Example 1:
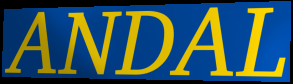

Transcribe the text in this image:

ANDAL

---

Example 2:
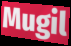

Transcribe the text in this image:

Mugil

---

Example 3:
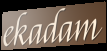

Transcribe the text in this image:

ekadam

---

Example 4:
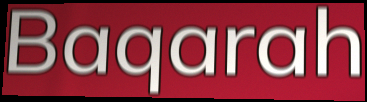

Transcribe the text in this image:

Baqarah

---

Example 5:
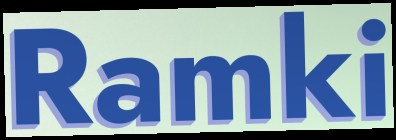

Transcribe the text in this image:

Ramki